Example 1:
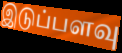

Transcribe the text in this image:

இடுப்பளவு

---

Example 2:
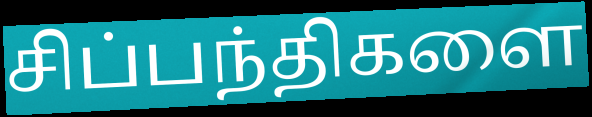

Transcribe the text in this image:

சிப்பந்திகளை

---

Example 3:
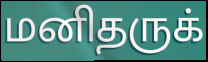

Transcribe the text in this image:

மனிதருக்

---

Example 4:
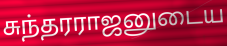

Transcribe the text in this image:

சுந்தரராஜனுடைய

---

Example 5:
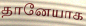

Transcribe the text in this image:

தானேயாக